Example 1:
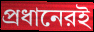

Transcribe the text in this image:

প্রধানেরই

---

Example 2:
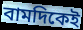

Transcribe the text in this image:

বামদিকেই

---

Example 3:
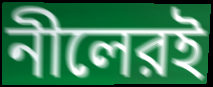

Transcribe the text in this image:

নীলেরই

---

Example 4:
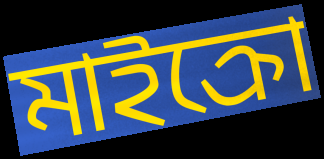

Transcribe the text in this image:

মাইক্রো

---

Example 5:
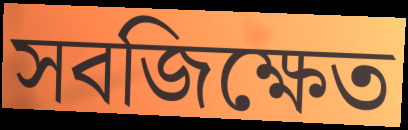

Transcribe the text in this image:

সবজিক্ষেত